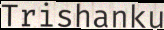
Trishanku